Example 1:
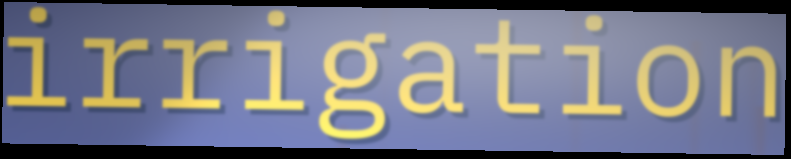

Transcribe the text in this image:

irrigation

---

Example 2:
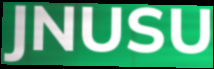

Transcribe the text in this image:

JNUSU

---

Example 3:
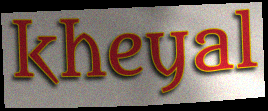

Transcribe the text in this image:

kheyal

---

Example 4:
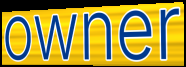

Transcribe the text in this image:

owner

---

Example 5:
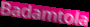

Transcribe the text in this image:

Badamtola